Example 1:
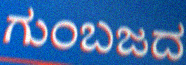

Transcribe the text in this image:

ಗುಂಬಜದ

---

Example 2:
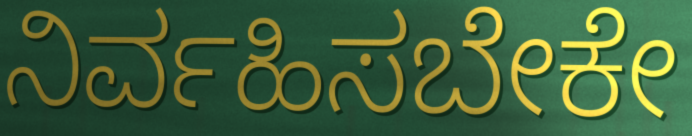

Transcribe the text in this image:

ನಿರ್ವಹಿಸಬೇಕೇ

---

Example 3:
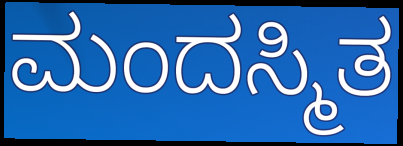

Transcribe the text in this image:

ಮಂದಸ್ಮಿತ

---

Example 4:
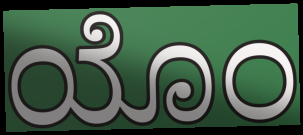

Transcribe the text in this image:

ಯೊಂ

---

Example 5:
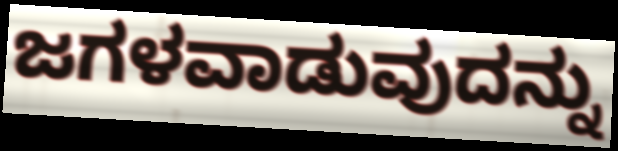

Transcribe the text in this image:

ಜಗಳವಾಡುವುದನ್ನು